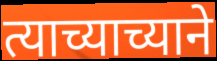
त्याच्याच्याने